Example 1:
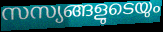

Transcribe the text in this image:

സസ്യങ്ങളുടെയും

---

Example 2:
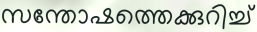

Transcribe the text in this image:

സന്തോഷത്തെക്കുറിച്ച്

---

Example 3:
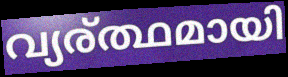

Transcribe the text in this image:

വ്യര്ത്ഥമായി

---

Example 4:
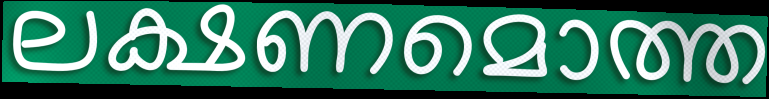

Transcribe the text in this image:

ലക്ഷണമൊത്ത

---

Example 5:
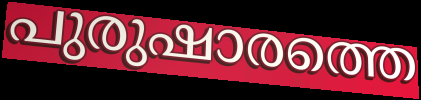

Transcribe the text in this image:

പുരുഷാരത്തെ